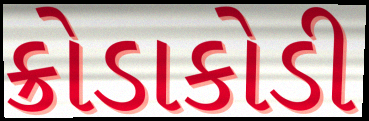
ક્રોડાકોડી